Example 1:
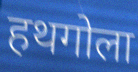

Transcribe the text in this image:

हथगोला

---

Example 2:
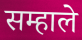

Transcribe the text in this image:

सम्हाले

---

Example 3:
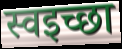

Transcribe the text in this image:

स्वइच्छा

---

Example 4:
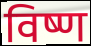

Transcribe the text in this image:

विष्ण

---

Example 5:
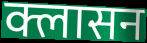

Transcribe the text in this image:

क्लासन